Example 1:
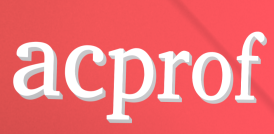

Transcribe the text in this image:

acprof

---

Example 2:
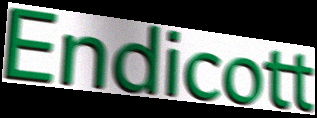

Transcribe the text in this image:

Endicott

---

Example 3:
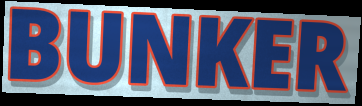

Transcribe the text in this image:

BUNKER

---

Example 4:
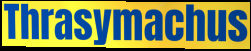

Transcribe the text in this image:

Thrasymachus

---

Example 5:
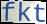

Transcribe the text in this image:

fkt